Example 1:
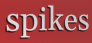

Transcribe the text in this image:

spikes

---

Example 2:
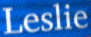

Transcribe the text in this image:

Leslie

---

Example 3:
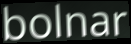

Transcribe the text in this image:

bolnar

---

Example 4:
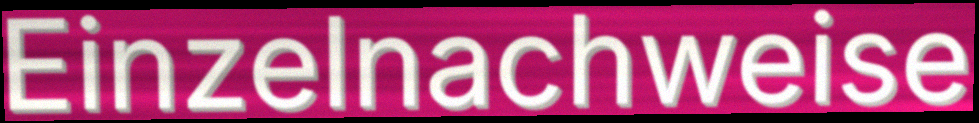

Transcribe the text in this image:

Einzelnachweise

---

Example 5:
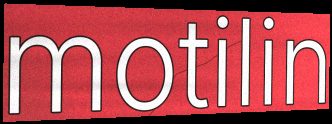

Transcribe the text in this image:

motilin